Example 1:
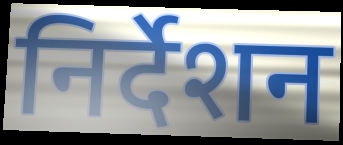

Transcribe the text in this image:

निर्देशन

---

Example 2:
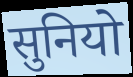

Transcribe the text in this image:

सुनियो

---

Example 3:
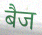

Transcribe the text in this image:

बैज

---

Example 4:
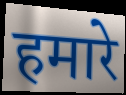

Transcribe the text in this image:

हमारे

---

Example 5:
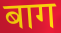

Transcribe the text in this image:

बाग